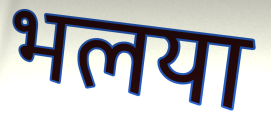
भलया